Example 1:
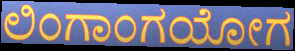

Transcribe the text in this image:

ಲಿಂಗಾಂಗಯೋಗ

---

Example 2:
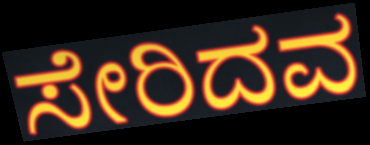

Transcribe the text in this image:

ಸೇರಿದವ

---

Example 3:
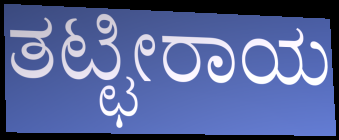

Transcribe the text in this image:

ತಟ್ಟೀರಾಯ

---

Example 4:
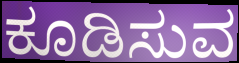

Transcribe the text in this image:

ಕೂಡಿಸುವ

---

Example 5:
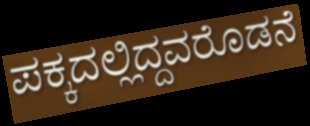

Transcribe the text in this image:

ಪಕ್ಕದಲ್ಲಿದ್ದವರೊಡನೆ